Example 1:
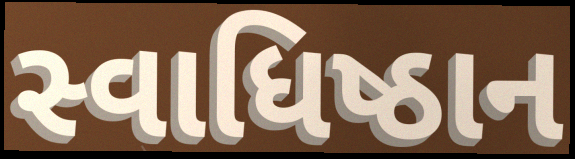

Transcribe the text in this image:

સ્વાધિષ્ઠાન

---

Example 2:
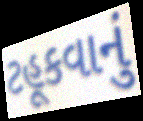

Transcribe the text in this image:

ટહૂકવાનું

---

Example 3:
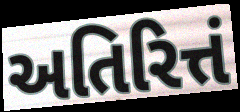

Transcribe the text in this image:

અતિરિત્તં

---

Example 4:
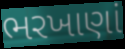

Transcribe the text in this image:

ભરખાણાં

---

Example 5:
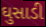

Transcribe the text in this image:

ઘુસાડી